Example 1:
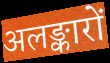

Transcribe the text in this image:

अलङ्कारों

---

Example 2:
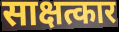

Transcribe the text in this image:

साक्षत्कार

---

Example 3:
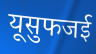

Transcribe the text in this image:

यूसुफजई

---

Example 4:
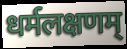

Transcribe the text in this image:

धर्मलक्षणम्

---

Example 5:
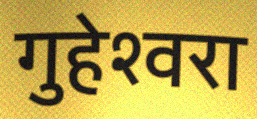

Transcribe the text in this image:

गुहेश्वरा